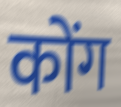
कोंग